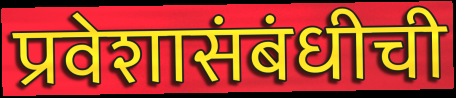
प्रवेशासंबंधीची